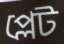
প্লেট